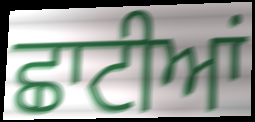
ਛਾਟੀਆਂ